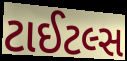
ટાઈટલ્સ